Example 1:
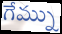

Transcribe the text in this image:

గేమ్ను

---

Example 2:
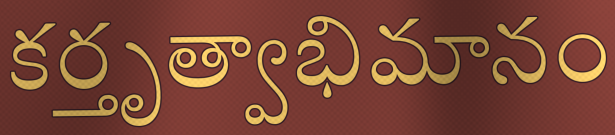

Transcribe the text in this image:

కర్తృత్వాభిమానం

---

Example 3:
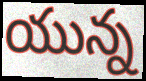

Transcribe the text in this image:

యున్న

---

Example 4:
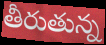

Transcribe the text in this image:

తీరుతున్న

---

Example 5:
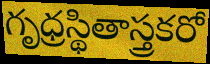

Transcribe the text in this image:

గృధ్రస్థితాస్త్రకరో